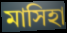
মাসিহা